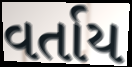
વર્તાય